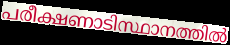
പരീക്ഷണാടിസ്ഥാനത്തിൽ